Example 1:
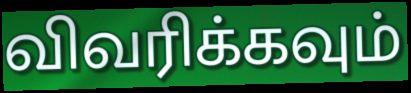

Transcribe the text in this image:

விவரிக்கவும்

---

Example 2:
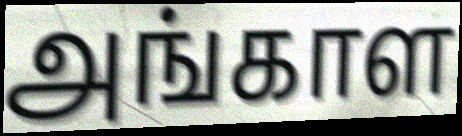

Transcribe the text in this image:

அங்காள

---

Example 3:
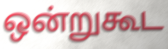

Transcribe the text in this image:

ஒன்றுகூட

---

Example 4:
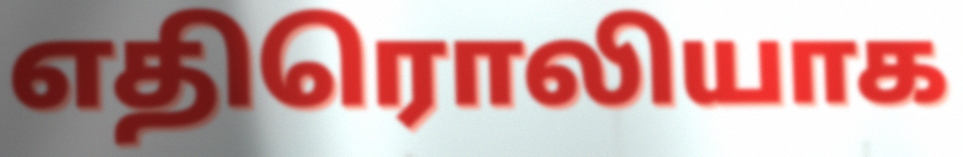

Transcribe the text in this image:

எதிரொலியாக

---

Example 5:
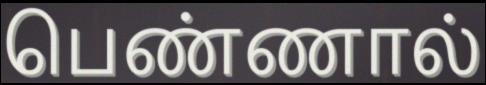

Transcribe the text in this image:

பெண்ணால்